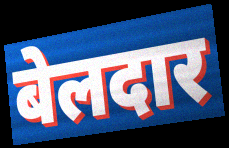
बेलदार